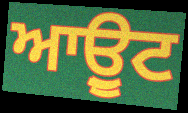
ਆਉੂਟ